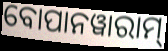
ବୋପାନୱାରାମ୍